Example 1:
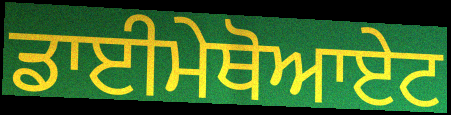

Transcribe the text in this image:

ਡਾਈਮੇਥੋਆਏਟ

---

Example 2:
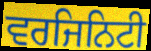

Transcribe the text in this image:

ਵਰਜਿਨਿਟੀ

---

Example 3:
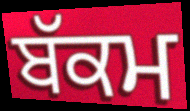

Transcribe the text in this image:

ਬੱਕਮ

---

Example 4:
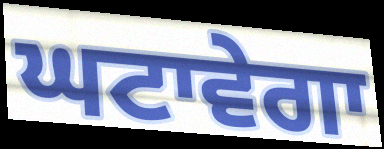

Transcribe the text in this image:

ਘਟਾਵੇਗਾ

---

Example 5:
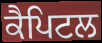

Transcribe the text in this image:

ਕੈਪਿਟਲ